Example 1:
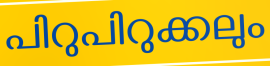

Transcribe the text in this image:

പിറുപിറുക്കലും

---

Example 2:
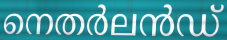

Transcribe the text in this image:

നെതർലൻഡ്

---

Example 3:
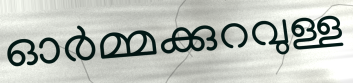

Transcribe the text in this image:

ഓർമ്മക്കുറവുള്ള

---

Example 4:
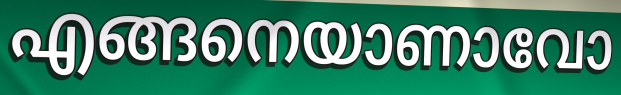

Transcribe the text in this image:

എങ്ങനെയാണാവോ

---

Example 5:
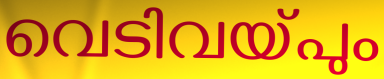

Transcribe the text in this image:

വെടിവയ്പും